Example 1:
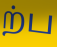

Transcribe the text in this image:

ற்ப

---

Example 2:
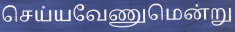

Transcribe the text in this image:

செய்யவேணுமென்று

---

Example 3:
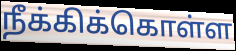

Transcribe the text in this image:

நீக்கிக்கொள்ள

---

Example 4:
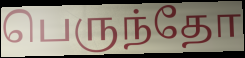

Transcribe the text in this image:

பெருந்தோ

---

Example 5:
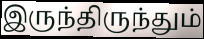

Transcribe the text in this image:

இருந்திருந்தும்